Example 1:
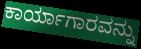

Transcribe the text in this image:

ಕಾರ್ಯಾಗಾರವನ್ನು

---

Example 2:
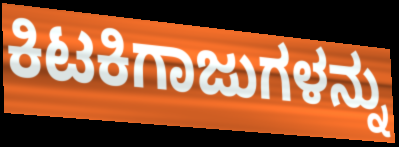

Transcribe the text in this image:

ಕಿಟಕಿಗಾಜುಗಳನ್ನು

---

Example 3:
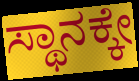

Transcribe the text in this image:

ಸ್ಥಾನಕ್ಕೇ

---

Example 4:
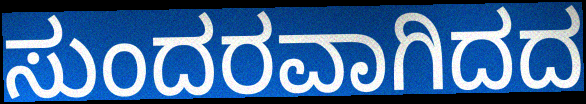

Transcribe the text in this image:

ಸುಂದರವಾಗಿದದ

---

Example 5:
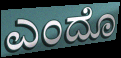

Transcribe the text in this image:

ಎಂದೊ